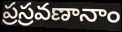
ప్రస్రవణానాం